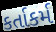
કર્તાકર્મ